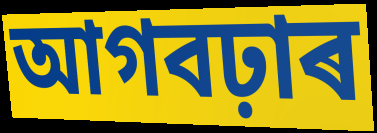
আগবঢ়াৰ